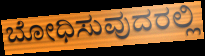
ಬೋಧಿಸುವುದರಲ್ಲಿ